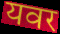
यवर